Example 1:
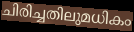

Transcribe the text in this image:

ചിരിച്ചതിലുമധികം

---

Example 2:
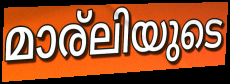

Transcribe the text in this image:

മാര്ലിയുടെ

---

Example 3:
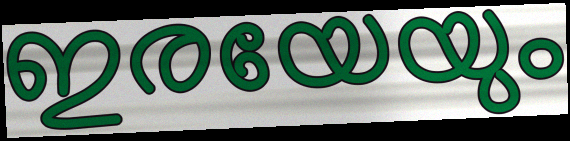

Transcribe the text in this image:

ഇരയേയും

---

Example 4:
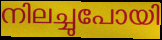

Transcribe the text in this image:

നിലച്ചുപോയി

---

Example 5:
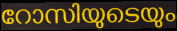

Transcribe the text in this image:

റോസിയുടെയും